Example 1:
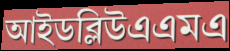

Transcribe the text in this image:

আইডব্লিউএএমএ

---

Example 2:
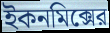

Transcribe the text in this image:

ইকনমিক্সের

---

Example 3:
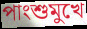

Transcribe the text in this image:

পাংশুমুখে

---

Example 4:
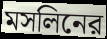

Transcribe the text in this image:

মসলিনের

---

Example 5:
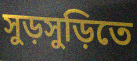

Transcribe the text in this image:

সুড়সুড়িতে